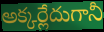
అక్కర్లేదుగానీ